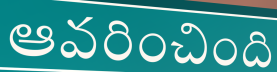
ఆవరించింది